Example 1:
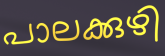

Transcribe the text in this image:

പാലക്കുഴി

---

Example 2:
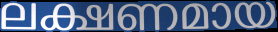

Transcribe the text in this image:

ലക്ഷണമായ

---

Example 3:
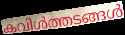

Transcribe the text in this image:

കവിൾത്തടങ്ങൾ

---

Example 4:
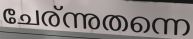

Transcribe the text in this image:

ചേര്ന്നുതന്നെ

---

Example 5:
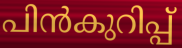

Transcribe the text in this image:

പിൻകുറിപ്പ്